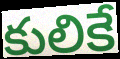
కులికే